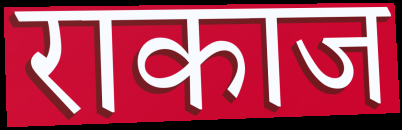
राकाज